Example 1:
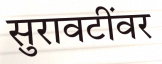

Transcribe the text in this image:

सुरावटींवर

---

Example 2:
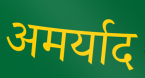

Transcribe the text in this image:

अमर्याद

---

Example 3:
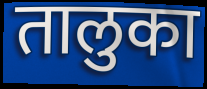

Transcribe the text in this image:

तालुका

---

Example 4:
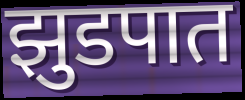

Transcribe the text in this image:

झुडपात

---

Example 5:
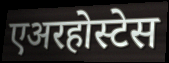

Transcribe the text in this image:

एअरहोस्टेस